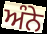
ਅੰਨੇ